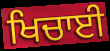
ਖਿਚਾਈ